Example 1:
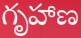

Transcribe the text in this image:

గృహాణ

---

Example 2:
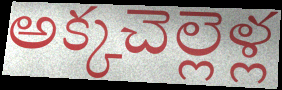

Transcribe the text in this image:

అక్కచెల్లెళ్ల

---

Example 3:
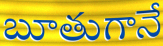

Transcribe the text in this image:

బూతుగానే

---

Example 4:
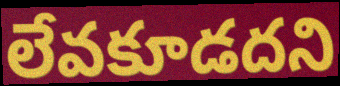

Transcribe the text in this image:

లేవకూడదని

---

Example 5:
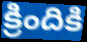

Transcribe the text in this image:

క్రిందికి